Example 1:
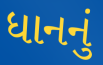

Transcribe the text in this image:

ધાનનું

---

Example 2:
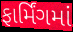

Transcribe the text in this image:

ફાર્મિંગમાં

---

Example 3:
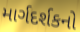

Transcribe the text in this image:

માર્ગદર્શકનો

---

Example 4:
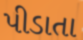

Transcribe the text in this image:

પીડાતા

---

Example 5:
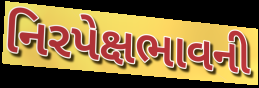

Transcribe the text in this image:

નિરપેક્ષભાવની